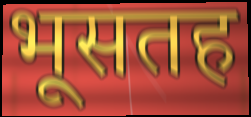
भूसतह